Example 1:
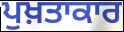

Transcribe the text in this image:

ਪੁਖ਼ਤਾਕਾਰ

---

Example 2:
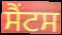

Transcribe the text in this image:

ਸੈਂਟਸ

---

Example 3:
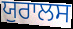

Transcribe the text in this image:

ਯੁਰਾਲਸ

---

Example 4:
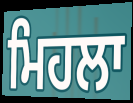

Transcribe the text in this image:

ਮਿਹਲਾ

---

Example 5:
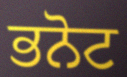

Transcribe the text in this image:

ਭਨੋਟ